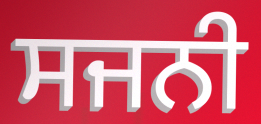
ਸਜਨੀ